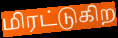
மிரட்டுகிற